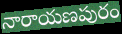
నారాయణపురం